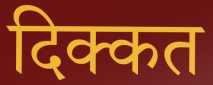
दिक्कत